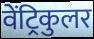
वेंट्रिकुलर